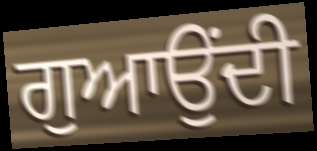
ਗੁਆਉਂਦੀ